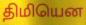
திமியென